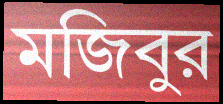
মজিবুর